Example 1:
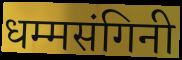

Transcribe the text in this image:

धम्मसंगिनी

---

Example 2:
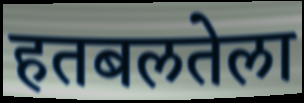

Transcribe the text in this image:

हतबलतेला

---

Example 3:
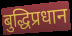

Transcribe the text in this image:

बुद्धिप्रधान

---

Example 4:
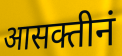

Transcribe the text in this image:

आसक्तीनं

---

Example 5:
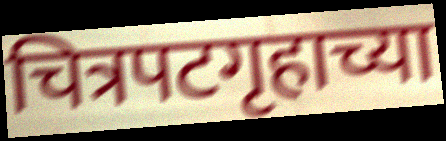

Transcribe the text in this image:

चित्रपटगृहाच्या